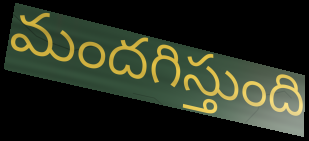
మందగిస్తుంది